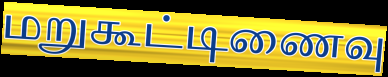
மறுகூட்டிணைவு